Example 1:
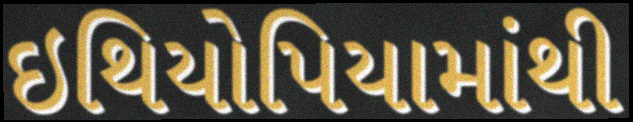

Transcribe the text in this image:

ઇથિયોપિયામાંથી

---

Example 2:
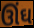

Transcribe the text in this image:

ઊંઘ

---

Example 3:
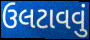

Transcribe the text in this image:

ઉલટાવવું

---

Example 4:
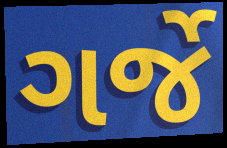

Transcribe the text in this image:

ગર્જે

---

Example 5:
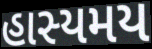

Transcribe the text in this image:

હાસ્યમય